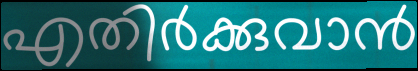
എതിർക്കുവാൻ